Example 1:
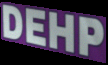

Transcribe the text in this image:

DEHP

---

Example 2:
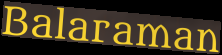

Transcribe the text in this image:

Balaraman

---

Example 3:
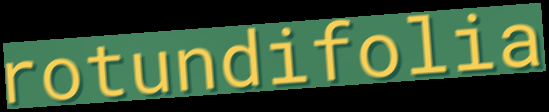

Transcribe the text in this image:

rotundifolia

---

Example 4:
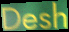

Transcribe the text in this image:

Desh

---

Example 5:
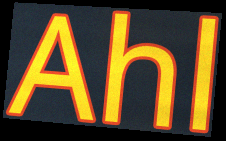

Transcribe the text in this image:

Ahl